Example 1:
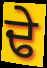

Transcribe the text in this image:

ਢੇ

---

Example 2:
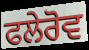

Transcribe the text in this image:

ਫਲੇਰੋਵ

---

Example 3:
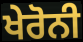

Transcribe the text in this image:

ਖੇਰੋਨੀ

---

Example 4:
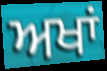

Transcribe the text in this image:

ਅਖਾਂ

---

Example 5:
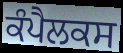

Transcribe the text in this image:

ਕੰਪੈਲਕਸ